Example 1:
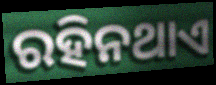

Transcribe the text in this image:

ରହିନଥାଏ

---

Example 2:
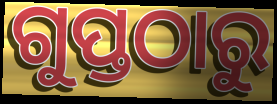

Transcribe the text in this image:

ଗୁପ୍ତଠାରୁ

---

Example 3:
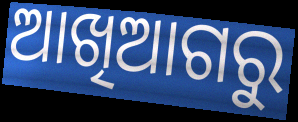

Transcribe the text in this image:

ଆଖିଆଗରୁ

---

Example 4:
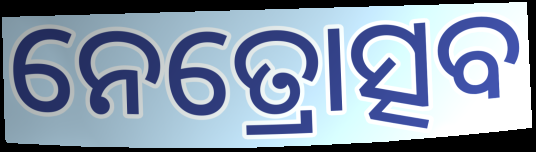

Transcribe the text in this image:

ନେତ୍ରୋତ୍ସବ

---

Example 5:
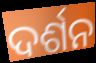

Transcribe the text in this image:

ଦର୍ଶନ